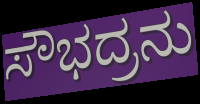
ಸೌಭದ್ರನು